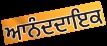
ਆਨੰਦਦਾਇਕ